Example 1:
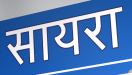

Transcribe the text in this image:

सायरा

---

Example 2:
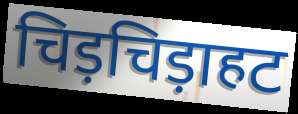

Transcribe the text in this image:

चिड़चिड़ाहट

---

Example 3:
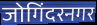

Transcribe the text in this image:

जोगिंदरनगर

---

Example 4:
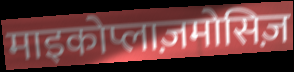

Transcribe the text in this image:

माइकोप्लाज़मोसिज़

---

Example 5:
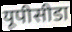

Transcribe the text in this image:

यूपीसीडा